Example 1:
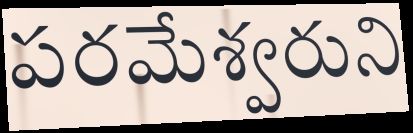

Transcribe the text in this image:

పరమేశ్వరుని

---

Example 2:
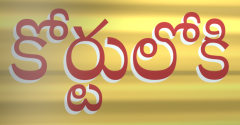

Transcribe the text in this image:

కోర్టులోకి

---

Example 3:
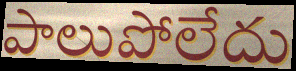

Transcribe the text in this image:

పాలుపోలేదు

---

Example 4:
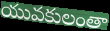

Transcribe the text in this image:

యువకులంతా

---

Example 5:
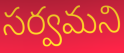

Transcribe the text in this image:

సర్వమని